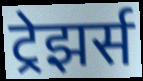
ट्रेझर्स